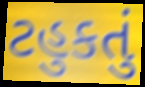
ટહુકતું